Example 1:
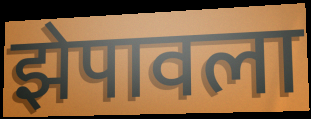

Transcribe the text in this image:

झेपावला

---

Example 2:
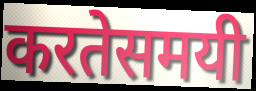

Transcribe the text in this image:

करतेसमयी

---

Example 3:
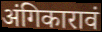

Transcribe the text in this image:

अंगिकारावं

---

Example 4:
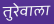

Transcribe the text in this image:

तुरेवाला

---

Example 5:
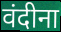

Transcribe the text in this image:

वंदीना